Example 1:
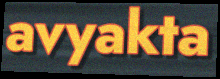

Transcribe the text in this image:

avyakta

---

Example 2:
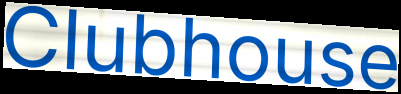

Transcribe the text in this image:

Clubhouse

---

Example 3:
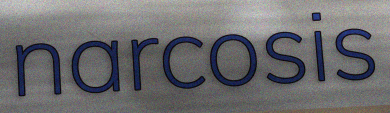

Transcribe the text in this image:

narcosis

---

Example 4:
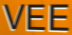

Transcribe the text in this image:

VEE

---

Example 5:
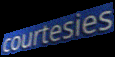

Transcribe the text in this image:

courtesies